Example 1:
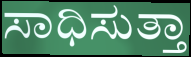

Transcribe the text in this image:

ಸಾಧಿಸುತ್ತಾ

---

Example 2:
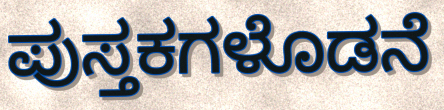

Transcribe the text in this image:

ಪುಸ್ತಕಗಳೊಡನೆ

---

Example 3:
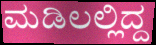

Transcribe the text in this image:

ಮಡಿಲಲ್ಲಿದ್ದ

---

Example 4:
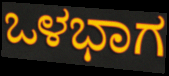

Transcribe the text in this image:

ಒಳಭಾಗ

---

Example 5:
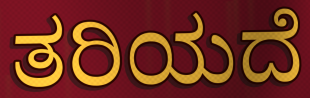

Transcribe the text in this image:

ತರಿಯದೆ